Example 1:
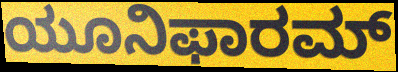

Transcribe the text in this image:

ಯೂನಿಫಾರಮ್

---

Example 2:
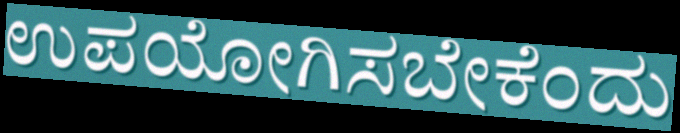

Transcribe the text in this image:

ಉಪಯೋಗಿಸಬೇಕೆಂದು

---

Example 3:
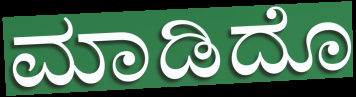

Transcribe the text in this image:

ಮಾಡಿದೊ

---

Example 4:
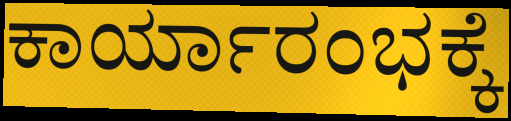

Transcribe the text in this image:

ಕಾರ್ಯಾರಂಭಕ್ಕೆ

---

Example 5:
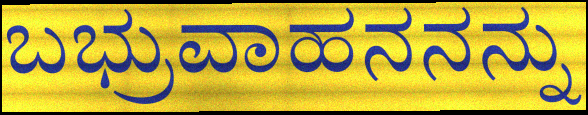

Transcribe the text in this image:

ಬಭ್ರುವಾಹನನನ್ನು